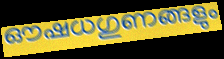
ഔഷധഗുണങ്ങളും